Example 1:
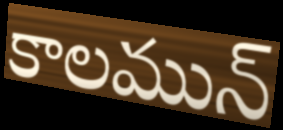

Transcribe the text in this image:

కాలమున్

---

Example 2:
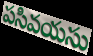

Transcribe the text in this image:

పసివయసు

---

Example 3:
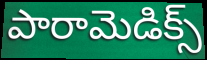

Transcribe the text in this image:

పారామెడిక్స్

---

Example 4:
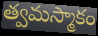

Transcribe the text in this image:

త్వమస్మాకం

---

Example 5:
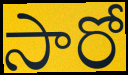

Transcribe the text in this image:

సారో